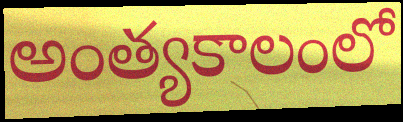
అంత్యకాలంలో